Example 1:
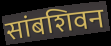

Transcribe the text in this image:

सांबशिवन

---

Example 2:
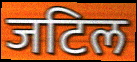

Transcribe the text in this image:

जटिल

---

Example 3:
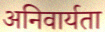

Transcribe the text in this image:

अनिवार्यता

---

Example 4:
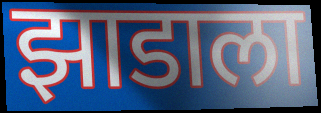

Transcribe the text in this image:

झाडाला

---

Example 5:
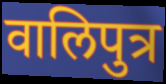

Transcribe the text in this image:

वालिपुत्र